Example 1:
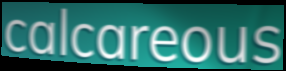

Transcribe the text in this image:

calcareous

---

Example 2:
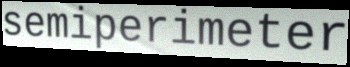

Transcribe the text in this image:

semiperimeter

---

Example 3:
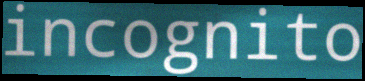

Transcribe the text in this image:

incognito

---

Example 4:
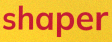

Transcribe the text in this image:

shaper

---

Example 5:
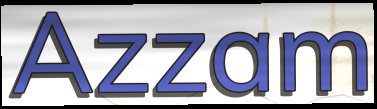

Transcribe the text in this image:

Azzam